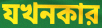
যখনকার